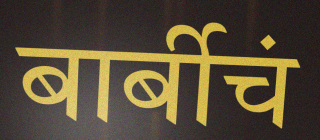
बार्बीचं